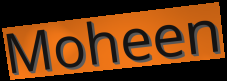
Moheen